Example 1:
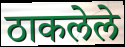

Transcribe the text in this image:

ठाकलेले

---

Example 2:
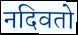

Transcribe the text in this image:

नदिवतो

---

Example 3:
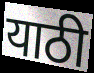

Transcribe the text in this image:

याठी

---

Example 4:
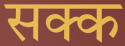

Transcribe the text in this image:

सक्क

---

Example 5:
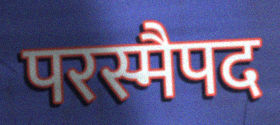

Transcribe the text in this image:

परस्मैपद